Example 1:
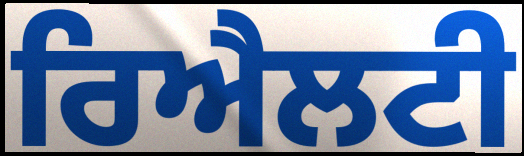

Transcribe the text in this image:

ਰਿਐਲਟੀ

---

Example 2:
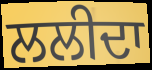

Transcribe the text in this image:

ਲਲੀਦਾ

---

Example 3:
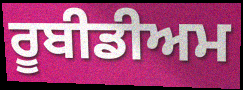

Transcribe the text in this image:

ਰੂਬੀਡੀਅਮ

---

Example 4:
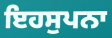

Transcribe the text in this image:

ਇਹਸੁਪਨਾ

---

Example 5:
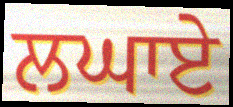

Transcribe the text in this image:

ਲਘਾਏ